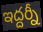
ఇద్దర్నీ